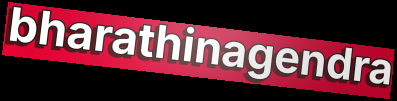
bharathinagendra